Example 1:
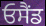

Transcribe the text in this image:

ਓਸੈਂਡ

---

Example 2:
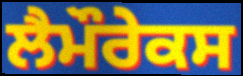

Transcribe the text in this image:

ਲੈਮੌਰੇਕਸ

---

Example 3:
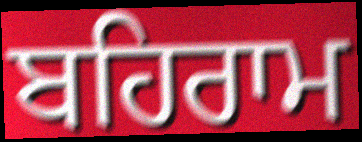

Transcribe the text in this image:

ਬਹਿਰਾਮ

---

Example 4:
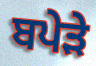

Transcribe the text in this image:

ਬਪੇੜੇ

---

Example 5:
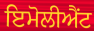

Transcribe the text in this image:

ਇਮੋਲੀਐਂਟ